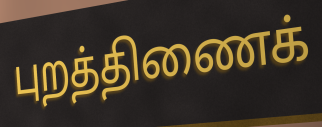
புறத்திணைக்